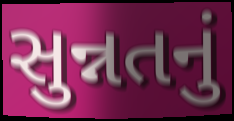
સુન્નતનું